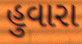
હુવારા